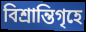
বিশ্রান্তিগৃহে